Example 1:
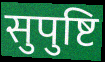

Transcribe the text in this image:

सुपुष्टि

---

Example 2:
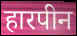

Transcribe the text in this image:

हारपीन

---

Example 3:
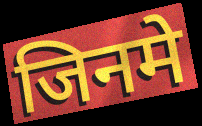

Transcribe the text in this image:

जिनमे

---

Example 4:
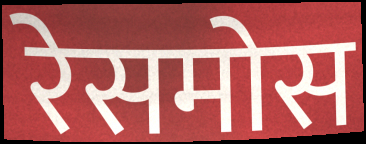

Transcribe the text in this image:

रेसमोस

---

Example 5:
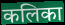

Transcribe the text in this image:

कलिका